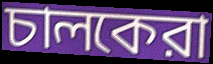
চালকেরা